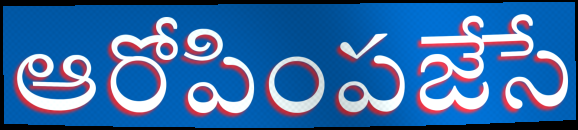
ఆరోపింపజేసే